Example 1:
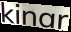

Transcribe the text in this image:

kinar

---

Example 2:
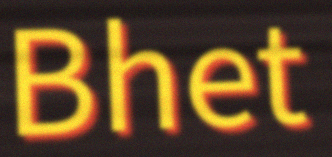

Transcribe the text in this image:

Bhet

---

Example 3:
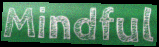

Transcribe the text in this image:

Mindful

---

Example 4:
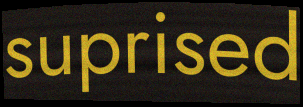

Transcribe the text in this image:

suprised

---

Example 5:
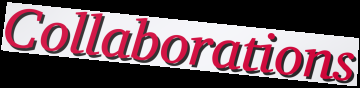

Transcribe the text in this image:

Collaborations